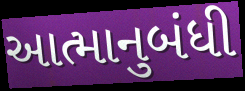
આત્માનુબંધી